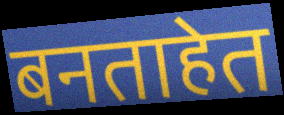
बनताहेत